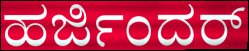
ಹರ್ಜಿಂದರ್